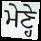
ਮੇਣ੍ਹੇ